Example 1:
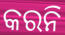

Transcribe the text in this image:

କରନି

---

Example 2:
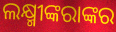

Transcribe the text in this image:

ଲକ୍ଷ୍ମୀଙ୍କରାଙ୍କର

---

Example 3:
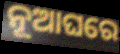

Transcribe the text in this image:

ନୂଆଘରେ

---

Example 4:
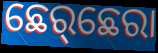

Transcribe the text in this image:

ଛେର୍‌ଛେରା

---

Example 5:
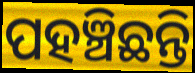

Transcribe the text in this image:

ପହଞ୍ଚିଛନ୍ତି